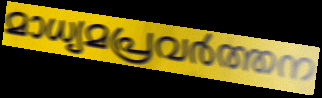
മാധ്യമപ്രവർത്തന